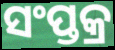
ସଂପ୍ତକ୍ର